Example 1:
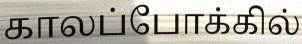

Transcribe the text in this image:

காலப்போக்கில்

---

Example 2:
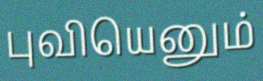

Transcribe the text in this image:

புவியெனும்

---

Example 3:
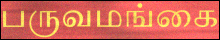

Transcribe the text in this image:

பருவமங்கை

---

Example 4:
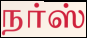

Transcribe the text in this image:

நர்ஸ்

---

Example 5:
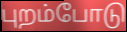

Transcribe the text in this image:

புறம்போடு